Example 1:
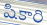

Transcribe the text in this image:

షికారి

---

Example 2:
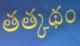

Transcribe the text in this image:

తత్కథం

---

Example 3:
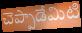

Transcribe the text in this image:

చెప్పాడేమిటి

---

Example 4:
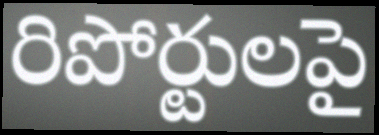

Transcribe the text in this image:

రిపోర్టులపై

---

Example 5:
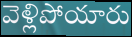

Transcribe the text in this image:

వెళ్లిపోయారు